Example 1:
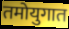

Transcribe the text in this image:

तमोयुगात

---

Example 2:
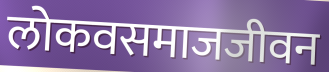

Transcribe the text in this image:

लोकवसमाजजीवन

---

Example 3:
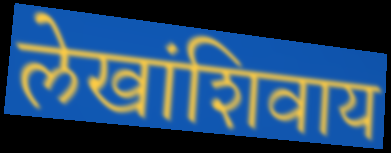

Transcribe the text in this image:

लेखांशिवाय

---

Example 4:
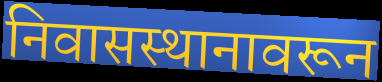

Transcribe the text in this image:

निवासस्थानावरून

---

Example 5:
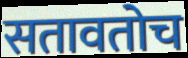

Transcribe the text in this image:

सतावतोच